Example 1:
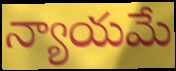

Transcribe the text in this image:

న్యాయమే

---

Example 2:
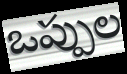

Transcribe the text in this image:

ఒప్పుల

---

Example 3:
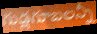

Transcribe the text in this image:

గుడ్లగూబలన్నీ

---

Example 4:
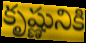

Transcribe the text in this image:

కృష్ణునికి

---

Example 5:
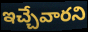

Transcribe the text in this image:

ఇచ్చేవారని